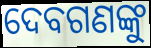
ଦେବଗଣଙ୍କୁ